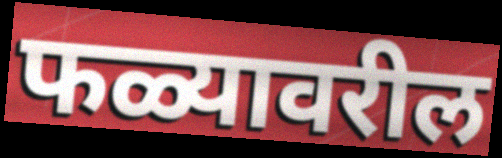
फळ्यावरील